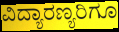
ವಿದ್ಯಾರಣ್ಯರಿಗೂ